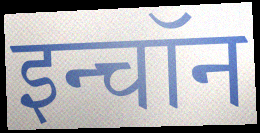
इन्चॉन